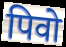
पिवो